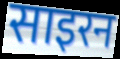
साइरन